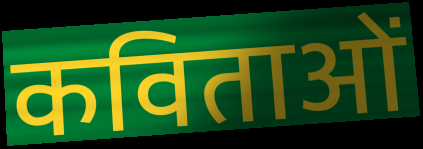
कविताओं